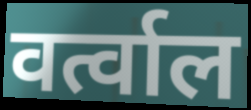
वर्त्वाल